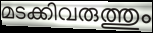
മടക്കിവരുത്തും